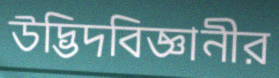
উদ্ভিদবিজ্ঞানীর